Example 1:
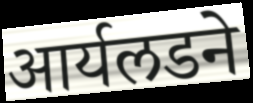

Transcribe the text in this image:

आर्यलडने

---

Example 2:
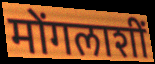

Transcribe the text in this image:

मोंगलाशीं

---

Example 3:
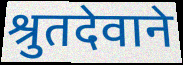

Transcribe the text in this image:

श्रुतदेवाने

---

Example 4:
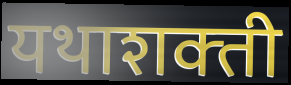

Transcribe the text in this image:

यथाशक्‍ती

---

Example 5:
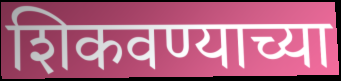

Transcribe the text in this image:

शिकवण्याच्या